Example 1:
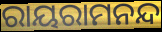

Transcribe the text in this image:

ରାୟରାମନନ୍ଦ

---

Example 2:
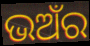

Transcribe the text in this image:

ଭଅଁର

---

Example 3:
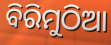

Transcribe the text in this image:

ବିରିମୁଠିଆ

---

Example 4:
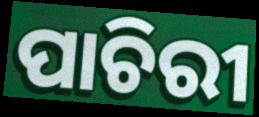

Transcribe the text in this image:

ପାଚିରୀ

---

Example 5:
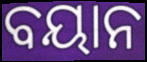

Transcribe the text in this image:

ବୟାନ